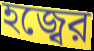
হজ্বের